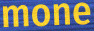
mone